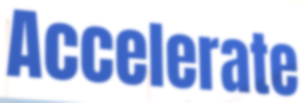
Accelerate